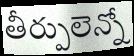
తీర్పులెన్నో